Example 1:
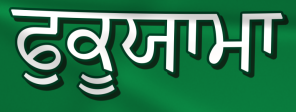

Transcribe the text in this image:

ਫੁਕੂਯਾਮਾ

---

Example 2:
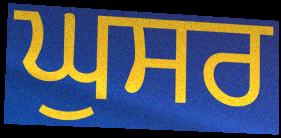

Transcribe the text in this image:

ਘੁਸਰ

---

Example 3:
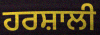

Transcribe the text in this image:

ਹਰਸ਼ਾਲੀ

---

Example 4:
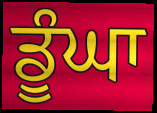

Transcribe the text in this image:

ਡੂੰਘਾ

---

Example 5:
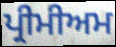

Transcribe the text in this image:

ਪ੍ਰੀਮੀਅਮ